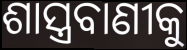
ଶାସ୍ତ୍ରବାଣୀକୁ